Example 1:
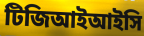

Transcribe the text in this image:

টিজিআইআইসি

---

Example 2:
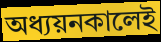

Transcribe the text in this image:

অধ্যয়নকালেই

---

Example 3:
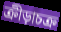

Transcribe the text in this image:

ক্রীড়াচক্র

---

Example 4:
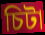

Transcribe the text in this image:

চিটা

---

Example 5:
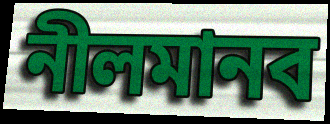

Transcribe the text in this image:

নীলমানব